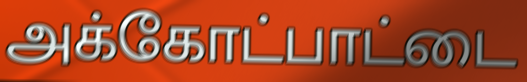
அக்கோட்பாட்டை